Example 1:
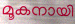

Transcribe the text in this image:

മൂകനായി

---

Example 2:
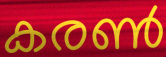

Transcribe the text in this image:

കരൺ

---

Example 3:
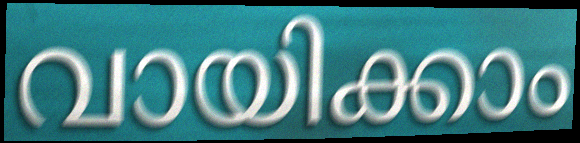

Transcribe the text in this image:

വായിക്കാം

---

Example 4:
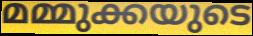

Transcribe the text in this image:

മമ്മുക്കയുടെ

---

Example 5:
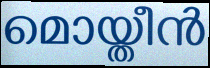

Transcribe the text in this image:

മൊയ്തീൻ